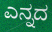
ಎನ್ನದ